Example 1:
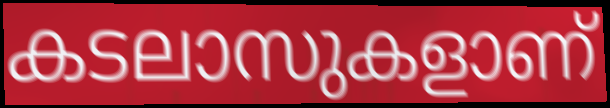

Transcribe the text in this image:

കടലാസുകളാണ്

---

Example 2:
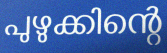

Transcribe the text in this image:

പുഴുക്കിന്റെ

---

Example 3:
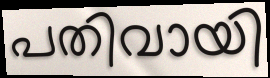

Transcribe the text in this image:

പതിവായി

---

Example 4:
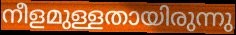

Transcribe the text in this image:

നീളമുള്ളതായിരുന്നു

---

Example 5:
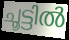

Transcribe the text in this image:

ചൂട്ടിൽ